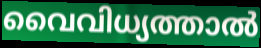
വൈവിധ്യത്താൽ